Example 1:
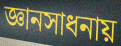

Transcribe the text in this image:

জ্ঞানসাধনায়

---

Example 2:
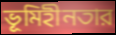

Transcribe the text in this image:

ভূমিহীনতার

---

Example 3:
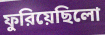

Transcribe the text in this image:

ফুরিয়েছিলো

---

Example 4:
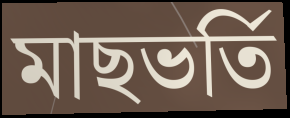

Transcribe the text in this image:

মাছভর্তি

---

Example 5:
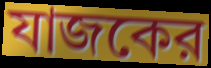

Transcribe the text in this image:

যাজকের